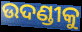
ଉଦଣ୍ଡୀକୁ